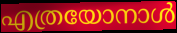
എത്രയോനാൾ